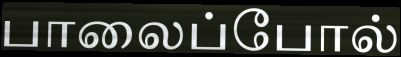
பாலைப்போல்